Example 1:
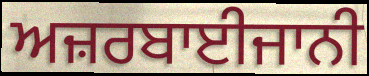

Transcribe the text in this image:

ਅਜ਼ਰਬਾਈਜਾਨੀ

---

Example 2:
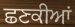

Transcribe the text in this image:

ਛਣਕੀਆਂ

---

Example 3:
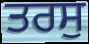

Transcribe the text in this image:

ਤਰਸੁ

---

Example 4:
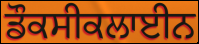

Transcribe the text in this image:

ਡੌਕਸੀਕਲਾਈਨ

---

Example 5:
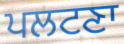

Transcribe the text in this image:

ਪਲਟਣਾ